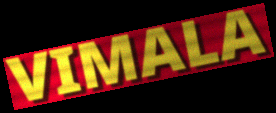
VIMALA